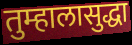
तुम्हालासुद्धा